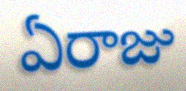
ఏరాజు